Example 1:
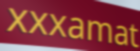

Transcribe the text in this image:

xxxamat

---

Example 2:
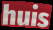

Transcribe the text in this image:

huis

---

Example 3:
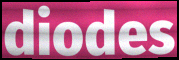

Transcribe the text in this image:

diodes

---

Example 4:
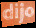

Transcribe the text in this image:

dijo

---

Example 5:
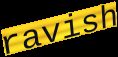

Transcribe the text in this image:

ravish